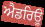
ਐਡਰਿਊ